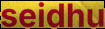
seidhu